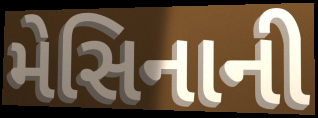
મેસિનાની